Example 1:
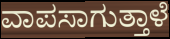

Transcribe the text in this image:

ವಾಪಸಾಗುತ್ತಾಳೆ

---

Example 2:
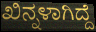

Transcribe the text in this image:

ಖಿನ್ನಳಾಗಿದ್ದೆ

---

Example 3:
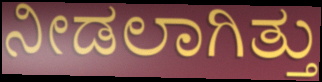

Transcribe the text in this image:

ನೀಡಲಾಗಿತ್ತು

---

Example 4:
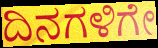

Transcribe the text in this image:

ದಿನಗಳಿಗೇ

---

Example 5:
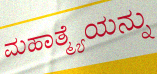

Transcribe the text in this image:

ಮಹಾತ್ಮ್ಯೆಯನ್ನು